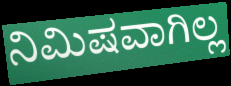
ನಿಮಿಷವಾಗಿಲ್ಲ